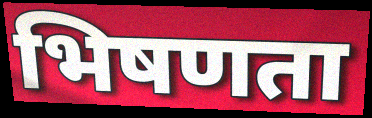
भिषणता